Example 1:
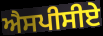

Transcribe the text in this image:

ਐਸਪੀਸੀਏ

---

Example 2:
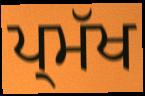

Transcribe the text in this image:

ਪ੍ਮੱਖ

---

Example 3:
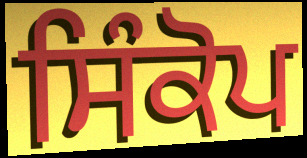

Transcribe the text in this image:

ਸਿੰਕੋਪ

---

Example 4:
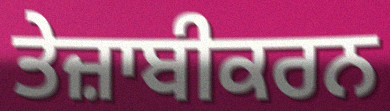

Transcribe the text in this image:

ਤੇਜ਼ਾਬੀਕਰਨ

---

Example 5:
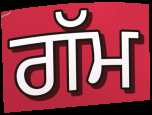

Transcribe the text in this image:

ਗੱਮ